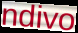
ndivo